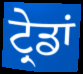
ਟ੍ਰੇਡਾਂ